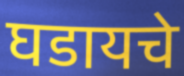
घडायचे